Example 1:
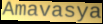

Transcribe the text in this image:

Amavasya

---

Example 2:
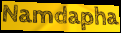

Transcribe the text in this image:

Namdapha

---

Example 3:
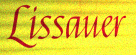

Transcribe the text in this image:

Lissauer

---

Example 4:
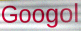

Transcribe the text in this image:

Googol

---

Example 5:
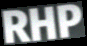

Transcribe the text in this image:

RHP